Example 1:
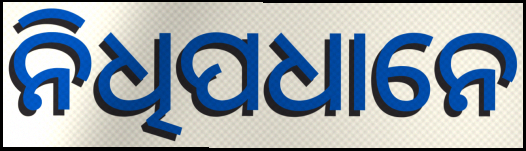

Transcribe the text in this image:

ନିଧିପଧାନେ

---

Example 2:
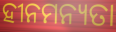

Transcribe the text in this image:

ହୀନମନ୍ୟତା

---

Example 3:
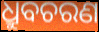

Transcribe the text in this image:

ଧ୍ରୁବଚରଣ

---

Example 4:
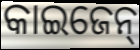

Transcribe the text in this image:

କାଇଜେନ୍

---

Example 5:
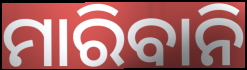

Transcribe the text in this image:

ମାରିବାନି